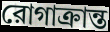
রোগাক্রান্ত